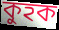
কুহক